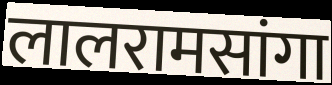
लालरामसांगा